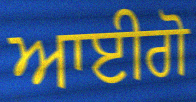
ਆਈਗੋ